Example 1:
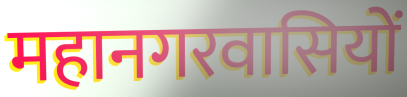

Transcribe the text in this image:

महानगरवासियों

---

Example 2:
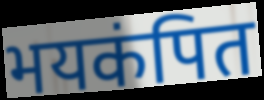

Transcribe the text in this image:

भयकंपित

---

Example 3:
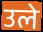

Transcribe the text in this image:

उले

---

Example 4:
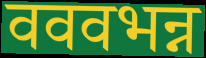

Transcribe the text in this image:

वववभन्न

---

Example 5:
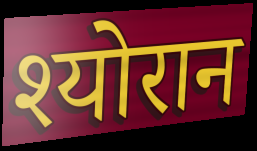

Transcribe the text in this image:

श्योरान